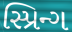
સ્પ્રિન્ગ